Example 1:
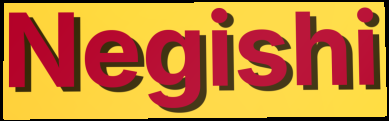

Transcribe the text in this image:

Negishi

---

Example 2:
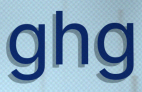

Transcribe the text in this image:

ghg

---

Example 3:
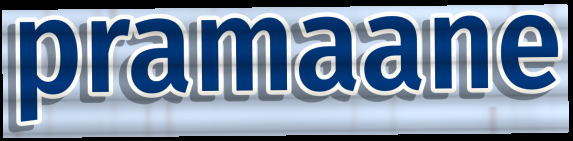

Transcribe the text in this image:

pramaane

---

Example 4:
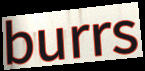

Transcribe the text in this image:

burrs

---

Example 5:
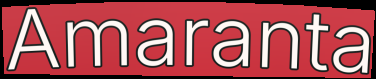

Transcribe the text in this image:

Amaranta